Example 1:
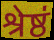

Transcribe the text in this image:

श्रेष्ठं॑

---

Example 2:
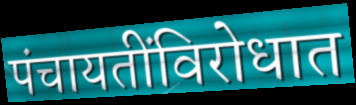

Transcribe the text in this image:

पंचायतींविरोधात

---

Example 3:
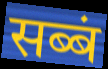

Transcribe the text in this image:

सब्बं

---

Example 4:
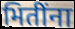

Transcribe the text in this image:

भितींना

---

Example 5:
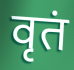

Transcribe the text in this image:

वृतं